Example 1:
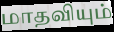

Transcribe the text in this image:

மாதவியும்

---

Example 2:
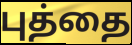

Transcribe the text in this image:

புத்தை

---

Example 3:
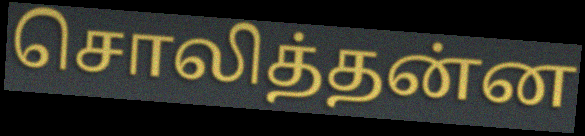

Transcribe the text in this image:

சொலித்தன்ன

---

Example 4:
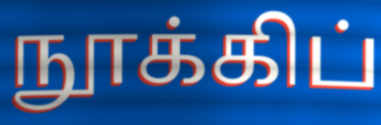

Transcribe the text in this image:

நூக்கிப்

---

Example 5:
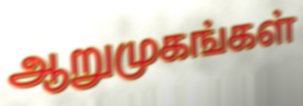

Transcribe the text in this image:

ஆறுமுகங்கள்